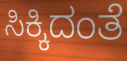
ಸಿಕ್ಕಿದಂತೆ